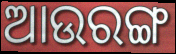
ଆଉରଙ୍ଗ